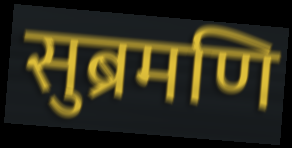
सुब्रमणि